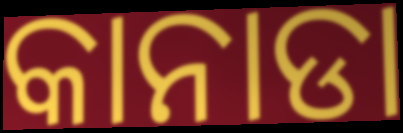
କାନାଡା